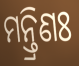
ମନ୍ତ୍ରିଣଃ